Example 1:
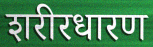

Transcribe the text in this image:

शरीरधारण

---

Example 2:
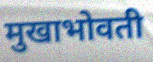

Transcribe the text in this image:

मुखाभोवती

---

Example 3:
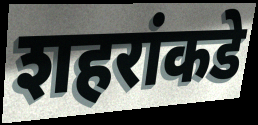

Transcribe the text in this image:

शहरांकडे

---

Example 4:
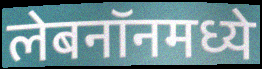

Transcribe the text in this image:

लेबनॉनमध्ये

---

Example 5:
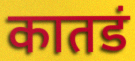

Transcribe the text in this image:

कातडं